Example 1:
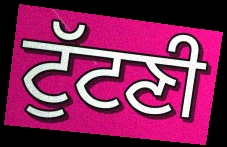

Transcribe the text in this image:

ਟੁੱਟਣੀ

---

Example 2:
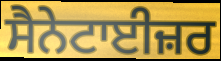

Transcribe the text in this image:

ਸੈਨੇਟਾਈਜ਼ਰ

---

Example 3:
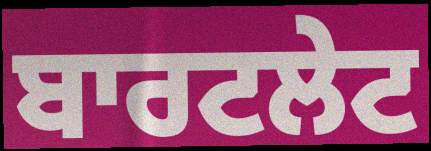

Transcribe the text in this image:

ਬਾਰਟਲੇਟ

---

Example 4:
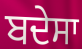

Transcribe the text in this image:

ਬਦੇਸਾ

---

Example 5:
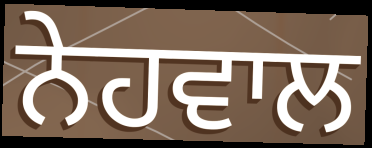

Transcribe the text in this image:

ਨੇਹਵਾਲ